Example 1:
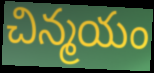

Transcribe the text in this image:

చిన్మయం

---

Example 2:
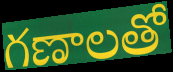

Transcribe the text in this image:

గణాలతో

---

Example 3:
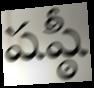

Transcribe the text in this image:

షష్ఠీ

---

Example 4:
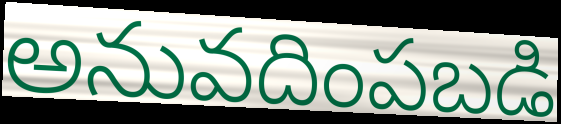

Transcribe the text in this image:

అనువదింపబడి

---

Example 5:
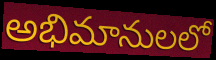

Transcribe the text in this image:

అభిమానులలో